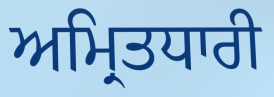
ਅਮ੍ਰਿਤਧਾਰੀ